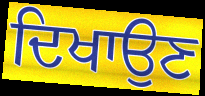
ਦਿਖਾਉਣ